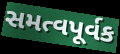
સમત્વપૂર્વક